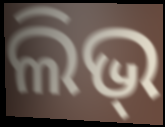
ଲିଭ୍